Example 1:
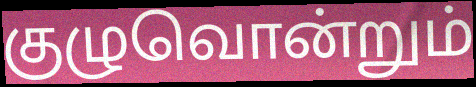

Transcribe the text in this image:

குழுவொன்றும்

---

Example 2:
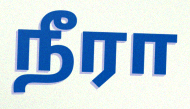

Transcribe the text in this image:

நீரா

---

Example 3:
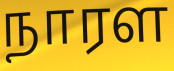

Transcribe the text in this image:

நாரள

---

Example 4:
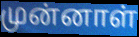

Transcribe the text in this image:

முன்னாள்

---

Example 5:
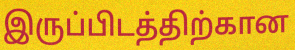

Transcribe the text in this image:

இருப்பிடத்திற்கான